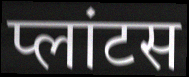
प्लांटस